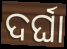
ଦର୍ଘା